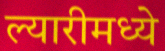
ल्यारीमध्ये